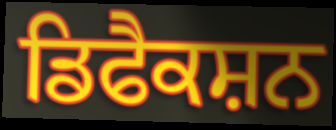
ਡਿਫੈਕਸ਼ਨ